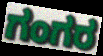
ಗಂಗರ